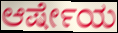
ಆರ್ಷೇಯ